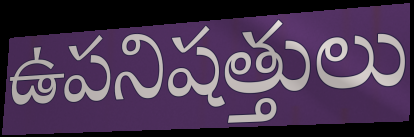
ఉపనిషత్తులు